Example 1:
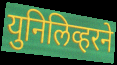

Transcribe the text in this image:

युनिलिव्हरने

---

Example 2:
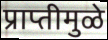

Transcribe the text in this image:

प्राप्तीमुळे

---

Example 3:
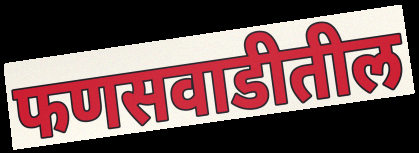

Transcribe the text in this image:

फणसवाडीतील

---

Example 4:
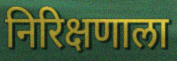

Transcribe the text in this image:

निरिक्षणाला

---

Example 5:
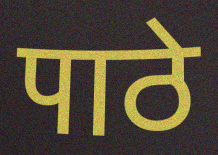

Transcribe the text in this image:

पाठे